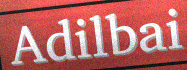
Adilbai